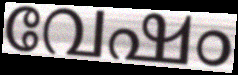
വേഷം